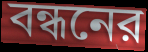
বন্ধনের